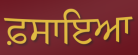
ਫ਼ਸਾਇਆ